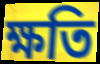
ক্ষতি